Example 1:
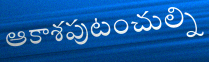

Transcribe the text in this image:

ఆకాశపుటంచుల్ని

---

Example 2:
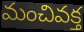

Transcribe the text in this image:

మంచివక్త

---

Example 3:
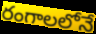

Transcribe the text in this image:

రంగాలలోనే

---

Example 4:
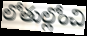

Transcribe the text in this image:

లోతుల్లోంచి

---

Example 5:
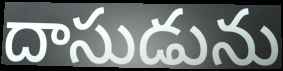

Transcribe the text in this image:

దాసుడును